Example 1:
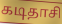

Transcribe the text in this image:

கடிதாசி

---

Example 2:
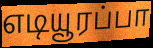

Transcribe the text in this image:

எடியூரப்பா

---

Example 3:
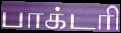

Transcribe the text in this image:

பாக்டரி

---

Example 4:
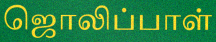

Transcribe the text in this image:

ஜொலிப்பாள்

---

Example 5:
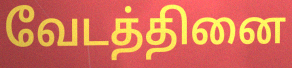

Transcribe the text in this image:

வேடத்தினை